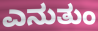
ಎನುತುಂ